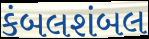
કંબલશંબલ